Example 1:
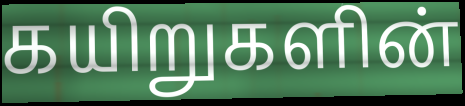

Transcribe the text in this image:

கயிறுகளின்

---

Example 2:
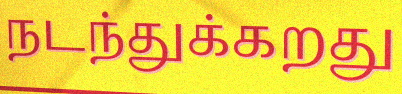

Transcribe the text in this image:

நடந்துக்கறது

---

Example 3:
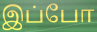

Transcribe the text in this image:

இப்போ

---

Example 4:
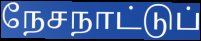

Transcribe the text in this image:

நேசநாட்டுப்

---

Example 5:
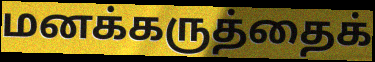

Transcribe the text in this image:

மனக்கருத்தைக்